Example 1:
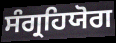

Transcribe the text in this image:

ਸੰਗ੍ਰਹਿਯੋਗ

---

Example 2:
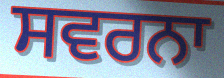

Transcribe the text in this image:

ਸਵਰਨਾ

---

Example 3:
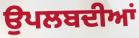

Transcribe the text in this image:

ਉਪਲਬਦੀਆਂ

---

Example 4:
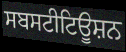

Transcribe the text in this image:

ਸਬਸਟੀਟਿਊਸ਼ਨ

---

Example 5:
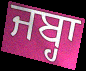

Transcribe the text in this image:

ਜਬ੍ਹਾ